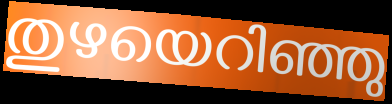
തുഴയെറിഞ്ഞു